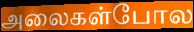
அலைகள்போல